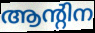
ആന്റിന